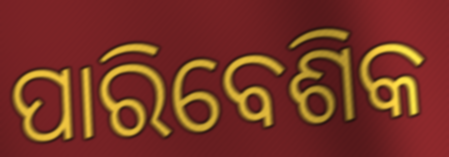
ପାରିବେଶିକ